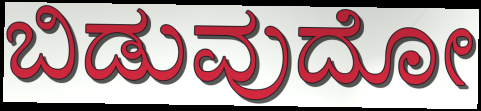
ಬಿಡುವುದೋ